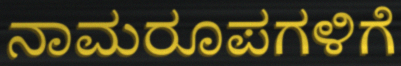
ನಾಮರೂಪಗಳಿಗೆ